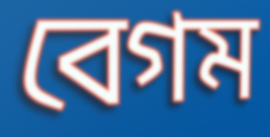
বেগম